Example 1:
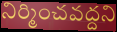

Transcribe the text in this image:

నిర్మించవద్దని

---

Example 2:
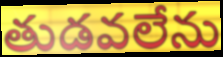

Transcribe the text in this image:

తుడవలేను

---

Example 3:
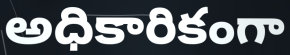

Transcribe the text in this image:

అధికారికంగా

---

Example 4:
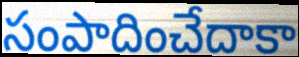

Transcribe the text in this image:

సంపాదించేదాకా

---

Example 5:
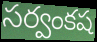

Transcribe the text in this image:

సర్వంకష